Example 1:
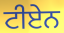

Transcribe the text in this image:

ਟੀਏਨ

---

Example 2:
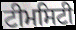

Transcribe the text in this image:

ਟੀਮਸਿਟੀ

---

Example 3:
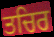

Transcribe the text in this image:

ਤਚਿਰ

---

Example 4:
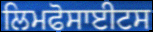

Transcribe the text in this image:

ਲਿਮਫੋਸਾਈਟਸ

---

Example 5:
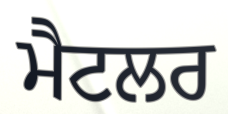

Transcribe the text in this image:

ਮੈਟਲਰ